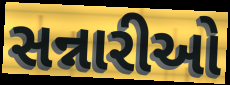
સન્નારીઓ